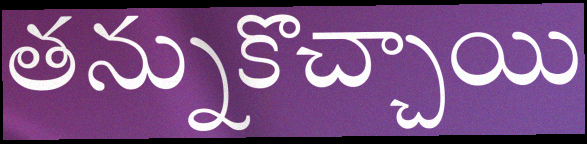
తన్నుకొచ్చాయి